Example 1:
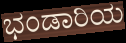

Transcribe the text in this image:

ಭಂಡಾರಿಯ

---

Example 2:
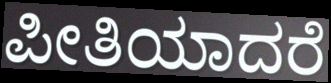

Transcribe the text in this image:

ಪೀತಿಯಾದರೆ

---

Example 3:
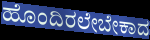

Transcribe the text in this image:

ಹೊಂದಿರಲೇಬೇಕಾದ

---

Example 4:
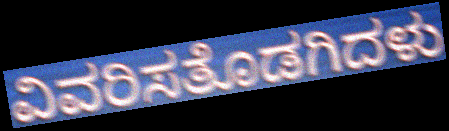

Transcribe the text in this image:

ವಿವರಿಸತೊಡಗಿದಳು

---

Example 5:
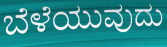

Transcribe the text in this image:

ಬೆಳೆಯುವುದು